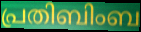
പ്രതിബിംബ